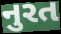
નુરત